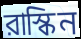
রাস্কিন